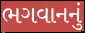
ભગવાનનું